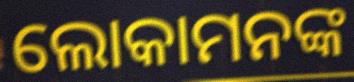
ଲୋକାମନଙ୍କ